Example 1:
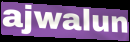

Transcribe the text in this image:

ajwalun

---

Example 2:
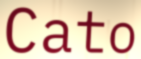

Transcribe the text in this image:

Cato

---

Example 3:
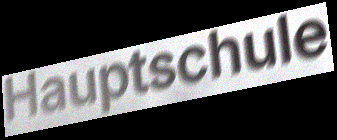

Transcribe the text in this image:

Hauptschule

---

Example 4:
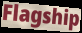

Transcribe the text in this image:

Flagship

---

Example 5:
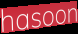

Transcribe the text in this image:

hasoon